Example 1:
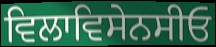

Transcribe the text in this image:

ਵਿਲਾਵਿਸੇਨਸੀਓ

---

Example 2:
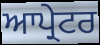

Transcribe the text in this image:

ਆਪ੍ਰੇਟਰ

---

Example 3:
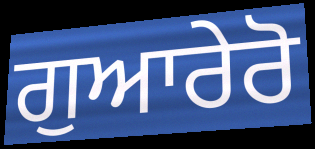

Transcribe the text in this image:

ਗੁਆਰੇਰੋ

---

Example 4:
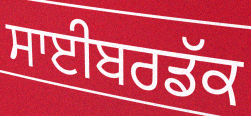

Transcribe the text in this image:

ਸਾਈਬਰਡੱਕ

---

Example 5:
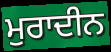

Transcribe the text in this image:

ਮੁਰਾਦੀਨ